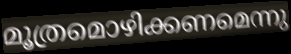
മൂത്രമൊഴിക്കണമെന്നു